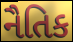
નૈતિક